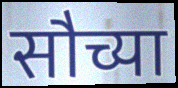
सौच्या